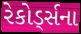
રેકોર્ડ્સના